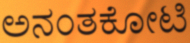
ಅನಂತಕೋಟಿ